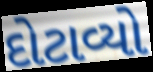
દોટાવ્યો